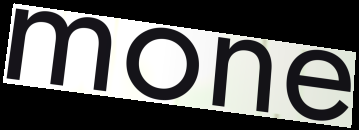
mone